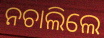
ନଚାଲିଲେ